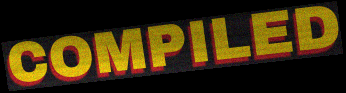
COMPILED